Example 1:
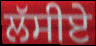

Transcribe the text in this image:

ਲੱਸੀਏ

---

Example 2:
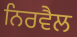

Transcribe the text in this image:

ਨਿਰਵੈਲ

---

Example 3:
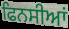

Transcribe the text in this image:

ਫਿਨਸੀਆਂ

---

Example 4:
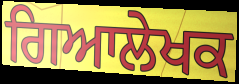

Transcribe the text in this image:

ਗਿਆਲੇਖਕ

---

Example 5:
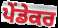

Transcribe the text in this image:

ਪੇਂਡੇਕਰ